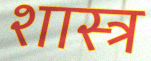
शास्‍त्र